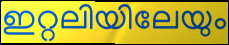
ഇറ്റലിയിലേയും